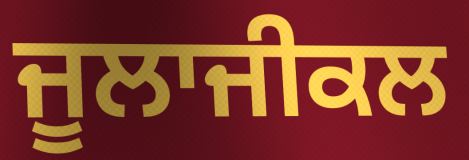
ਜੂਲਾਜੀਕਲ